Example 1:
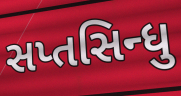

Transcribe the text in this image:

સપ્તસિન્ધુ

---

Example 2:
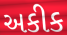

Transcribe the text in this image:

અકીક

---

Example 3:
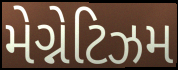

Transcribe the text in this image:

મેગ્નેટિઝમ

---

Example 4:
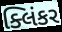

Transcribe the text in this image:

ક્લિંકર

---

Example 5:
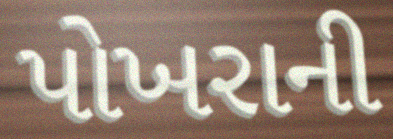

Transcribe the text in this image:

પોખરાની